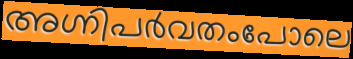
അഗ്നിപർവതംപോലെ